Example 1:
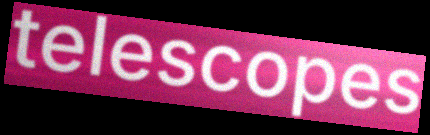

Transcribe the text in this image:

telescopes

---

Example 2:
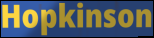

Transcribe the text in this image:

Hopkinson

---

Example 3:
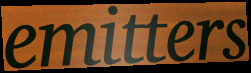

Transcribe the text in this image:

emitters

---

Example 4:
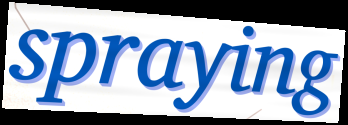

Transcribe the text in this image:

spraying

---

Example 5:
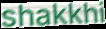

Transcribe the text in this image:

shakkhi